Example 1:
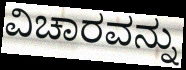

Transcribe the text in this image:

ವಿಚಾರವನ್ನು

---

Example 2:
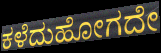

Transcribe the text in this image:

ಕಳೆದುಹೋಗದೇ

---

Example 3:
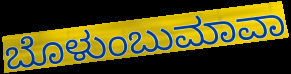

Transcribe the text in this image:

ಬೊಳುಂಬುಮಾವಾ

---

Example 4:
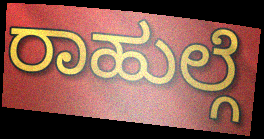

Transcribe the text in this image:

ರಾಹುಲ್ಗೆ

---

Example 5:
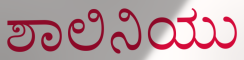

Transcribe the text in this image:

ಶಾಲಿನಿಯು